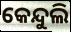
କେନ୍ଦୁଲି